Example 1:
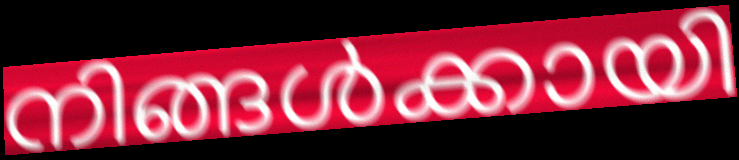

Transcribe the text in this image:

നിങ്ങൾക്കായി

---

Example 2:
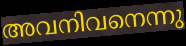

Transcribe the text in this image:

അവനിവനെന്നു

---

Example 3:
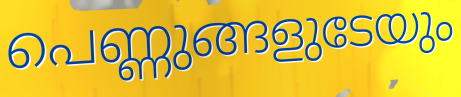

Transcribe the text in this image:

പെണ്ണുങ്ങളുടേയും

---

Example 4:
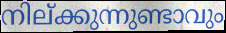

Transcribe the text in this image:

നില്ക്കുന്നുണ്ടാവും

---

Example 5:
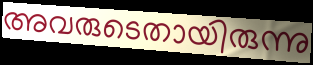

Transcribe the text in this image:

അവരുടെതായിരുന്നു